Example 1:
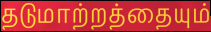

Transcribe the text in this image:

தடுமாற்றத்தையும்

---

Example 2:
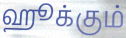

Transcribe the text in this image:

ஹூக்கும்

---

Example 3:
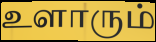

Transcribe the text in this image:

உளாரும்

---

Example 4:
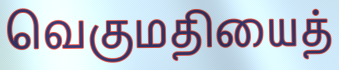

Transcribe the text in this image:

வெகுமதியைத்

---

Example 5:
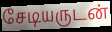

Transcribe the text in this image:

சேடியருடன்